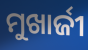
ମୁଖାର୍ଜୀ